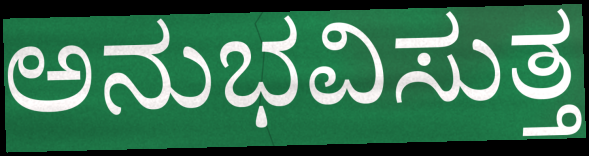
ಅನುಭವಿಸುತ್ತ